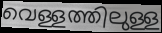
വെള്ളത്തിലുള്ള